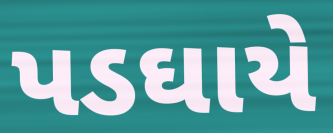
પડઘાયે